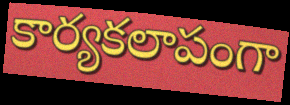
కార్యకలాపంగా